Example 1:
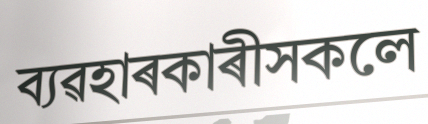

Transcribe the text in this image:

ব্যৱহাৰকাৰীসকলে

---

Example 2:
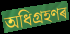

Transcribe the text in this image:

অধিগ্ৰহণৰ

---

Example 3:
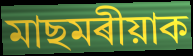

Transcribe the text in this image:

মাছমৰীয়াক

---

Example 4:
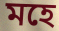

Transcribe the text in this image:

মহে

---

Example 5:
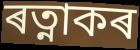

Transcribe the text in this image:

ৰত্নাকৰ